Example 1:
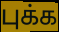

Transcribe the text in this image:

புக்க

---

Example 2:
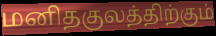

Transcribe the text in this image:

மனிதகுலத்திற்கும்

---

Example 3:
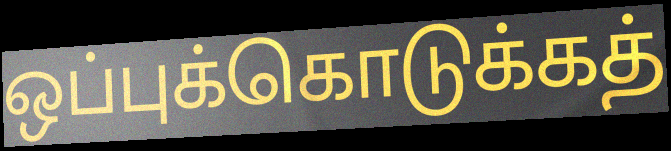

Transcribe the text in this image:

ஒப்புக்கொடுக்கத்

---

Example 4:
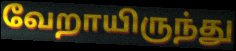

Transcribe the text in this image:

வேறாயிருந்து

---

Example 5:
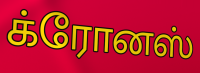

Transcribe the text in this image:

க்ரோனஸ்